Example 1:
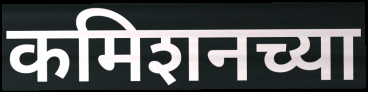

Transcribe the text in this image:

कमिशनच्या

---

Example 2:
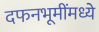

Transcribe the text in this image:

दफनभूमींमध्ये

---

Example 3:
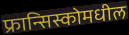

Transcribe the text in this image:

फ्रान्सिस्कोमधील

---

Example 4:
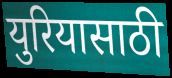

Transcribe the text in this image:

युरियासाठी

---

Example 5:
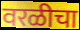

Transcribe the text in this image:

वरळीचा